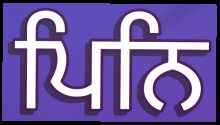
ਪਿਨਿ